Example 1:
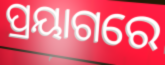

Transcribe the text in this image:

ପ୍ରୟାଗରେ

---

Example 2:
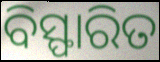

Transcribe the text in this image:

ବିସ୍ଫାରିତ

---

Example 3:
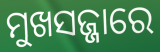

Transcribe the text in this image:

ମୁଖସଜ୍ଜାରେ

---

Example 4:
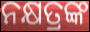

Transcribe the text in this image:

ନକ୍ଷତ୍ରଙ୍କ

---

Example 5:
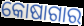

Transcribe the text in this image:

କୋଷାଗାର